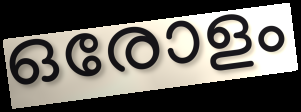
ഒരോളം